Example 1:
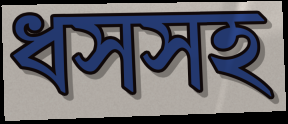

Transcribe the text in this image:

ধসসহ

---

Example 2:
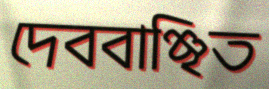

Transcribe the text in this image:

দেববাঞ্ছিত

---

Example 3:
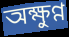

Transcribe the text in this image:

অক্ষুণ্ন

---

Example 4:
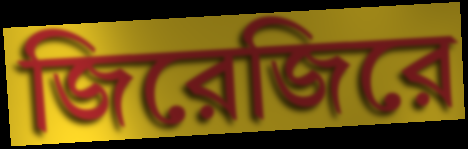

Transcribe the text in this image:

জিরেজিরে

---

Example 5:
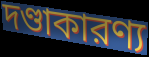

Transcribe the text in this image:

দণ্ডাকারণ্য